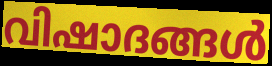
വിഷാദങ്ങൾ